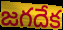
జగదేక